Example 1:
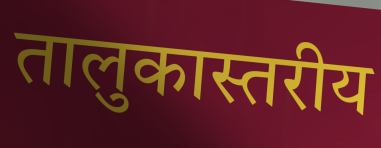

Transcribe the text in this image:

तालुकास्तरीय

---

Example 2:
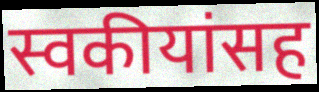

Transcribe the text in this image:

स्वकीयांसह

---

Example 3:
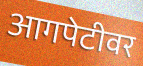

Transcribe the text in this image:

आगपेटीवर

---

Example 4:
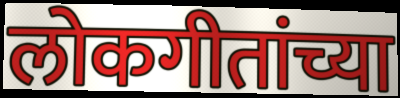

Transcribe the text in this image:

लोकगीतांच्या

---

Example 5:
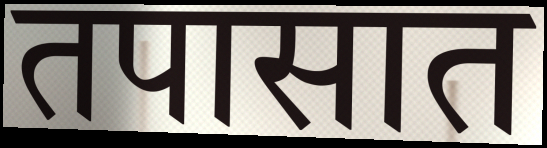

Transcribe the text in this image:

तपासात